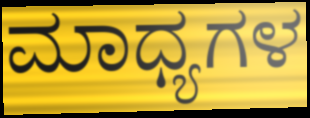
ಮಾಧ್ಯಗಳ